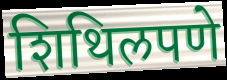
शिथिलपणे